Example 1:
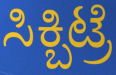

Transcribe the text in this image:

ಸಿಕ್ಬಿಟ್ರೆ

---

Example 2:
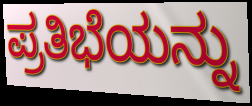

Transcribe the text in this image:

ಪ್ರತಿಭೆಯನ್ನು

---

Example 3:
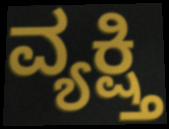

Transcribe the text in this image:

ವ್ಯಕ್ಷ್ತಿ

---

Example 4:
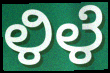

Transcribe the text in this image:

ಳಿಳೆ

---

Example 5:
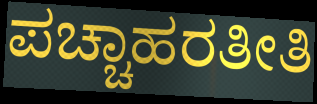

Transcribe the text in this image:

ಪಚ್ಚಾಹರತೀತಿ